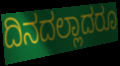
ದಿನದಲ್ಲಾದರೂ